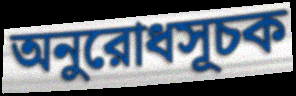
অনুরোধসূচক